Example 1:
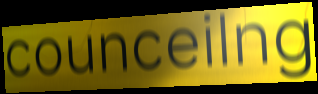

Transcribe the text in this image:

counceilng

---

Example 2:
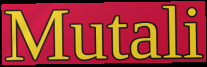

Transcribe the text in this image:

Mutali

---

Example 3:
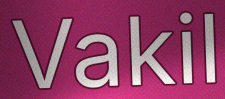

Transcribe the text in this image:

Vakil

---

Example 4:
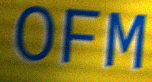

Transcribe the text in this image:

OFM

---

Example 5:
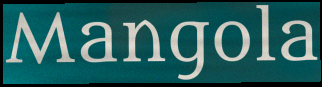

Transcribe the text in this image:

Mangola